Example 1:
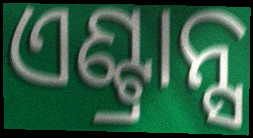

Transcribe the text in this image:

ଏଣ୍ଟ୍ରାନ୍ସ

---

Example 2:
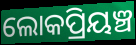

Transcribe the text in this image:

ଲୋକପ୍ରିୟଞ୍ଚ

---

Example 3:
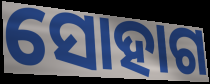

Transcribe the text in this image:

ସୋହାଗ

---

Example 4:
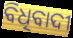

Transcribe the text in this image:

ବିଧିବାଦୀ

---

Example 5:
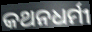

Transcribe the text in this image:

କଥନଧର୍ମୀ